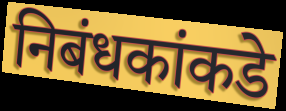
निबंधकांकडे